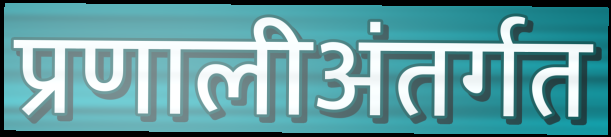
प्रणालीअंतर्गत